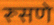
रूसणे